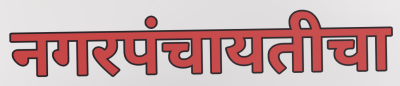
नगरपंचायतीचा